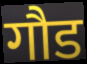
गौड